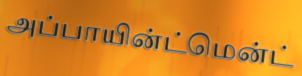
அப்பாயின்ட்மென்ட்